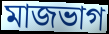
মাজভাগ